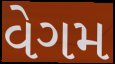
વેગમ